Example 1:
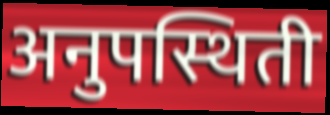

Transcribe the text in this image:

अनुपस्थिती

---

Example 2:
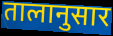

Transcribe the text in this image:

तालानुसार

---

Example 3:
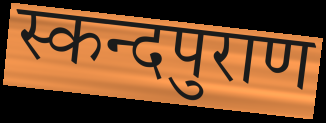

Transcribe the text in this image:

स्कन्दपुराण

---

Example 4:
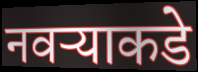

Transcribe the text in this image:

नवऱ्याकडे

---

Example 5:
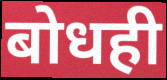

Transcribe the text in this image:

बोधही